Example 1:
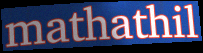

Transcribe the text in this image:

mathathil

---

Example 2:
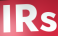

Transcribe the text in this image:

IRs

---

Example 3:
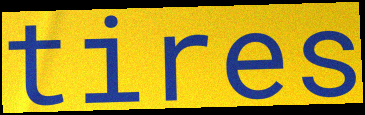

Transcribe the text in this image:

tires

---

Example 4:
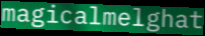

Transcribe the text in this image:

magicalmelghat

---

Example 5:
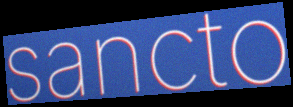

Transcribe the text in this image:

sancto